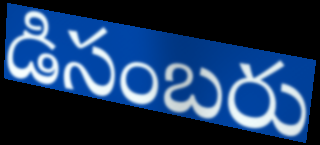
డిసంబరు